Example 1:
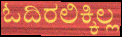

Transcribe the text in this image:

ಓದಿರಲಿಕ್ಕಿಲ್ಲ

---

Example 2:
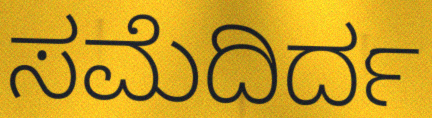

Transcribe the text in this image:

ಸಮೆದಿರ್ದ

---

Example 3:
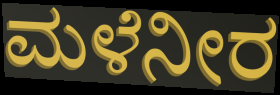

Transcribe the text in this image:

ಮಳೆನೀರ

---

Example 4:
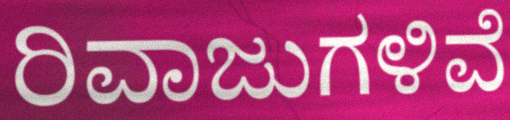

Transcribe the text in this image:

ರಿವಾಜುಗಳಿವೆ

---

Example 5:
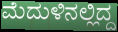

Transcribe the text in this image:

ಮೆದುಳಿನಲ್ಲಿದ್ದ